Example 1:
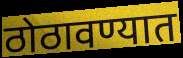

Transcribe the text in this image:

ठोठावण्यात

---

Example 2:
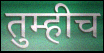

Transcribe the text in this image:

तुम्हीच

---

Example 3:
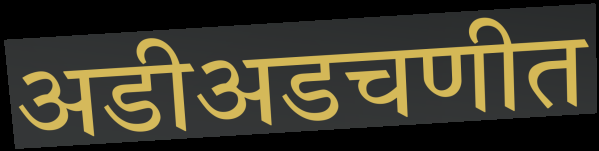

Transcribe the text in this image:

अडीअडचणीत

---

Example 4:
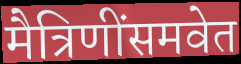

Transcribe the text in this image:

मैत्रिणींसमवेत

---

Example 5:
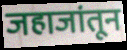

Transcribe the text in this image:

जहाजांतून